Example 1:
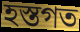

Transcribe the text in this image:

হস্তগত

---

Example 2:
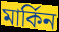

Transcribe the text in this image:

মার্কিন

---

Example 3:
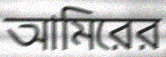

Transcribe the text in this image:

আমিরের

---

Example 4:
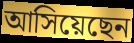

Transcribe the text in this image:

আসিয়েছেন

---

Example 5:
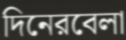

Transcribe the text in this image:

দিনেরবেলা